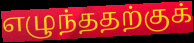
எழுந்ததற்குக்